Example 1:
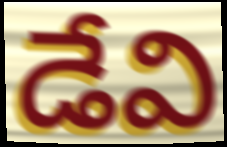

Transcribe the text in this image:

డేవి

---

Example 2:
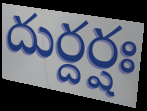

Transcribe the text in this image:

దుర్దర్షః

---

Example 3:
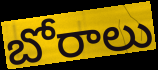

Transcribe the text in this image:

బోరాలు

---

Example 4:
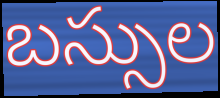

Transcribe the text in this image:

బస్సుల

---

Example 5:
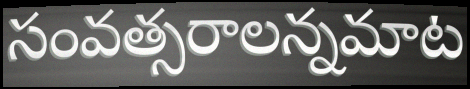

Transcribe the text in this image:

సంవత్సరాలన్నమాట